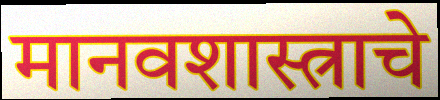
मानवशास्त्राचे